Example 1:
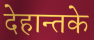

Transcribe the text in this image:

देहान्तके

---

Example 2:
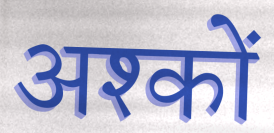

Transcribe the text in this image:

अश्कों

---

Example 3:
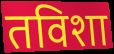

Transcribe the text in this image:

तविशा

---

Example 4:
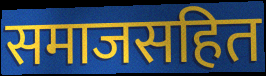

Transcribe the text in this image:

समाजसहित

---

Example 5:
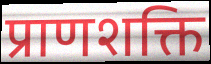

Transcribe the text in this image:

प्राणशक्ति